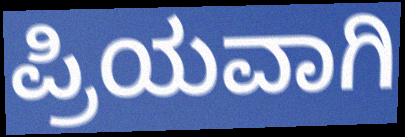
ಪ್ರಿಯವಾಗಿ